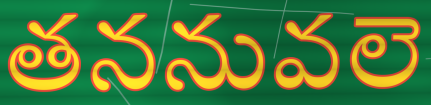
తననువలె